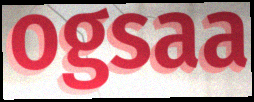
ogsaa